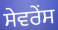
ਸੇਵਰੇਂਸ